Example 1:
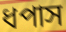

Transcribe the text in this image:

ধপাস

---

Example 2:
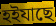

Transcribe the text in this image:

হইযাছে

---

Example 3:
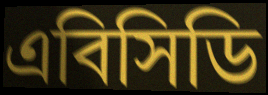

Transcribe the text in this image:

এবিসিডি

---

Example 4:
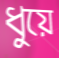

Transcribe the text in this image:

ধুয়ে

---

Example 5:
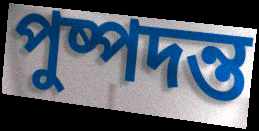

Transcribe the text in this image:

পুষ্পদন্ত